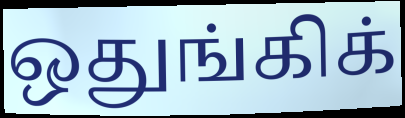
ஒதுங்கிக்